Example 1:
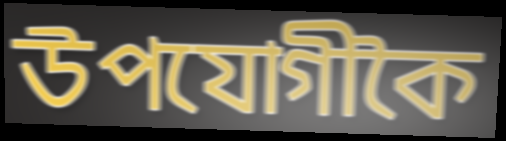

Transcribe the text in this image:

উপযোগীকৈ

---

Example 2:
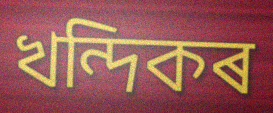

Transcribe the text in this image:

খন্দিকৰ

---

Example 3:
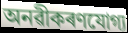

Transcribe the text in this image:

অনৱীকৰণযোগ্য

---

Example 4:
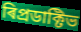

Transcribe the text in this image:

ৰিপ্ৰডাক্টিভ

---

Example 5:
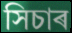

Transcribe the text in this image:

সিচাৰ